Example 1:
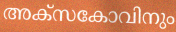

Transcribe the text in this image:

അക്സകോവിനും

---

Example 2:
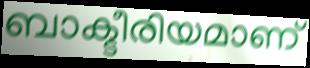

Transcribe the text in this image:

ബാക്ടീരിയമാണ്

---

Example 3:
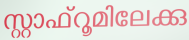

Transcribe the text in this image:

സ്റ്റാഫ്റൂമിലേക്കു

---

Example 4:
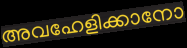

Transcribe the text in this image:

അവഹേളിക്കാനോ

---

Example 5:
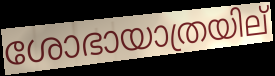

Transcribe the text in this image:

ശോഭായാത്രയില്